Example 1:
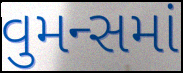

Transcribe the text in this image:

વુમન્સમાં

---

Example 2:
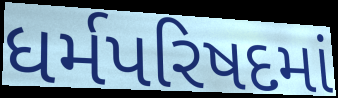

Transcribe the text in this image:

ધર્મપરિષદમાં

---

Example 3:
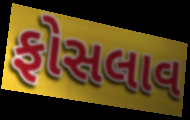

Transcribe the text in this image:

ફોસલાવ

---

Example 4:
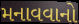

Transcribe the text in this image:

મનાવવાનો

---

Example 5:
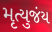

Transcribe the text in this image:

મૃત્યુજંય